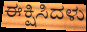
ಈಕ್ಷಿಸಿದಳು